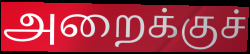
அறைக்குச்